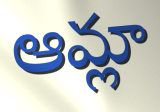
ఆమ్లా